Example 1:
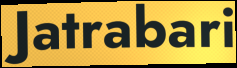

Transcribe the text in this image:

Jatrabari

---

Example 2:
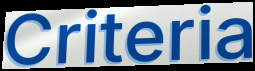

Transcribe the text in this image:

Criteria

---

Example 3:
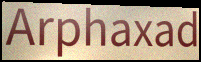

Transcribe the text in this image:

Arphaxad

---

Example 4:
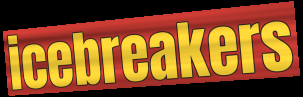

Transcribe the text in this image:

icebreakers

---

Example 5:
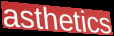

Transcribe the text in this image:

asthetics